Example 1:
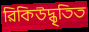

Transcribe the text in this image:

ৱিকিউদ্ধৃতিত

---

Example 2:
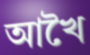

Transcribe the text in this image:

আখৈ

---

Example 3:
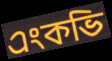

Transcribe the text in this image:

এংকভি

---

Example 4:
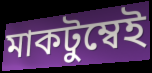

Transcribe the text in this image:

মাকটুম্বেই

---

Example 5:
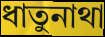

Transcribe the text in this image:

ধাতুনাথা